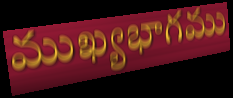
ముఖ్యభాగము